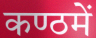
कण्ठमें